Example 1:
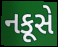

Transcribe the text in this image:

નકૂસે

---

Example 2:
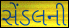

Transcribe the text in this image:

સેંડલની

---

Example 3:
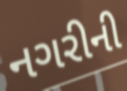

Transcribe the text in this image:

નગરીની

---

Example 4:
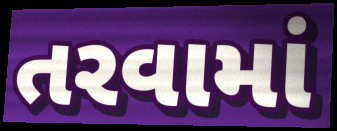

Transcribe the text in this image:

તરવામાં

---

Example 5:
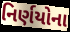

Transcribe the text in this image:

નિર્ણયોના